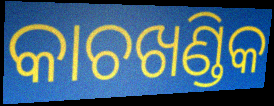
କାଚଖଣ୍ଡିକ